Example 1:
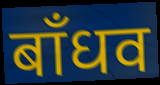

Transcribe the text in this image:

बाँधव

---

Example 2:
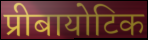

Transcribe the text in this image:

प्रीबायोटिक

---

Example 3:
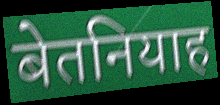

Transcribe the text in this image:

बेतनियाह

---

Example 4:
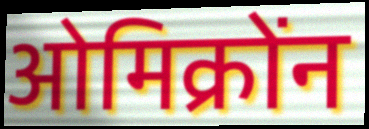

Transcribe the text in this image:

ओमिक्रोंन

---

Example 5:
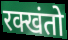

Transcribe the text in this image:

रक्खंतो